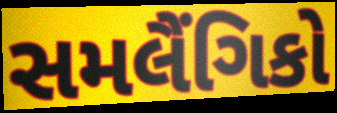
સમલૈંગિકો